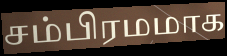
சம்பிரமமாக